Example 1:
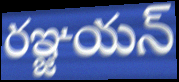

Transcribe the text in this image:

రఞ్జయన్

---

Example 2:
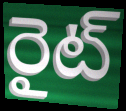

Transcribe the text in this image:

రైట్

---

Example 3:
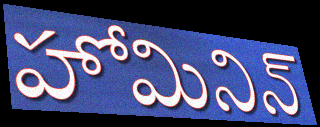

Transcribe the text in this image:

హోమినిన్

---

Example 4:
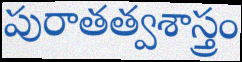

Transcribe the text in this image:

పురాతత్వశాస్త్రం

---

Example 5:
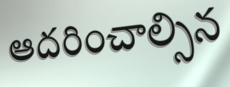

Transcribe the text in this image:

ఆదరించాల్సిన